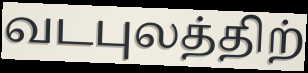
வடபுலத்திற்